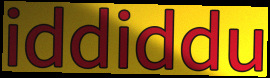
iddiddu